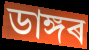
ডাঙ্গৰ